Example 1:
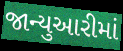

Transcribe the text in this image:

જાન્યુઆરીમાં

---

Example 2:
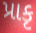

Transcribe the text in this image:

પ્રાકૃ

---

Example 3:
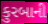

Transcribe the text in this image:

કુરબાની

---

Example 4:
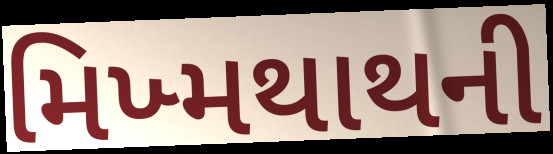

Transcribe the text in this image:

મિખ્મથાથની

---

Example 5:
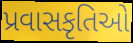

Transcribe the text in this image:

પ્રવાસકૃતિઓ